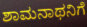
ಶಾಮನಾಥನಿಗೆ